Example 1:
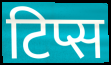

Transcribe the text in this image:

टिप्स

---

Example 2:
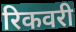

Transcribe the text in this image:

रिकवरी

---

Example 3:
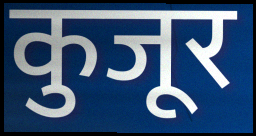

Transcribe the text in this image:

कुजूर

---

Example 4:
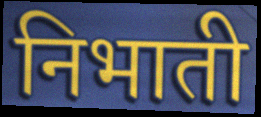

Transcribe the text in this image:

निभाती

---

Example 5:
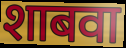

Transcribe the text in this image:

शाबवा